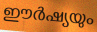
ഈർഷ്യയും